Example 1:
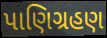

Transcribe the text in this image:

પાણિગ્રહણ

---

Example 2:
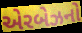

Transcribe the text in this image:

એરબેઝનો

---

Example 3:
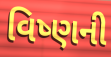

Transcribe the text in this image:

વિષ્ણની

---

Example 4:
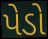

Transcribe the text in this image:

પેડો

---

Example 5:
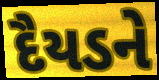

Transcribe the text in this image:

દૈયડને